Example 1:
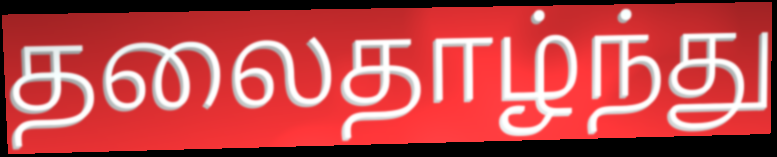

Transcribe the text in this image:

தலைதாழ்ந்து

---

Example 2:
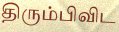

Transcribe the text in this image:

திரும்பிவிட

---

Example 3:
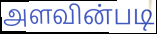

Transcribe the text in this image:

அளவின்படி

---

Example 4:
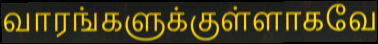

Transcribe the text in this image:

வாரங்களுக்குள்ளாகவே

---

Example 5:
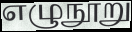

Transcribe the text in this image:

எழுநூறு